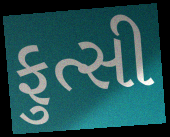
ફુત્સી